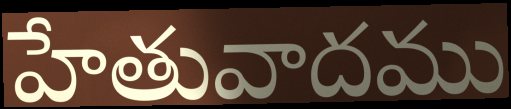
హేతువాదము